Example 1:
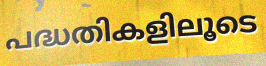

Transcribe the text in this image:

പദ്ധതികളിലൂടെ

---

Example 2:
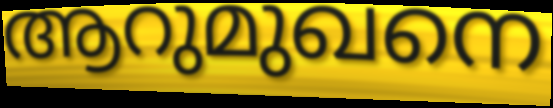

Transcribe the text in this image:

ആറുമുഖനെ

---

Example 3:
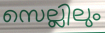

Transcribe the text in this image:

സെല്ലിലും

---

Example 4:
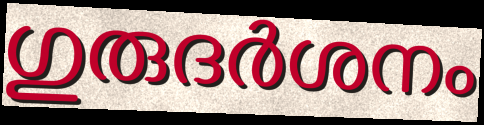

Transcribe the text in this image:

ഗുരുദർശനം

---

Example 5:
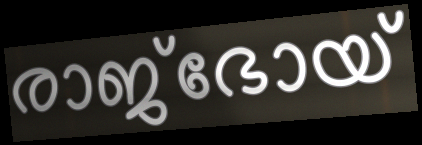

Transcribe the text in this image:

രാജ്ഭോയ്